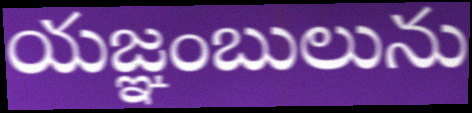
యజ్ఞంబులును